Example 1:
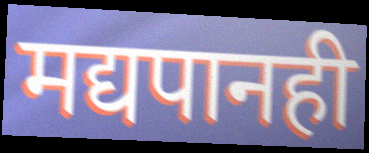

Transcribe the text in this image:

मद्यपानही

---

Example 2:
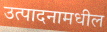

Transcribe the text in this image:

उत्पादनामधील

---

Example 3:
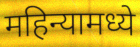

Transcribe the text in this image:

महिन्यामध्ये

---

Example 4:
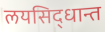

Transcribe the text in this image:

लयसिद्धान्त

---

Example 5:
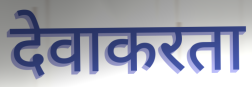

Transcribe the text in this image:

देवाकरता